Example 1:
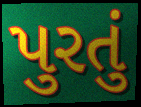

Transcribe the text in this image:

પુરતું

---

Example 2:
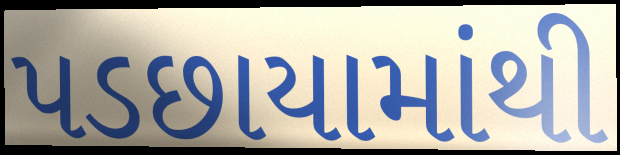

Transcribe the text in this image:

પડછાયામાંથી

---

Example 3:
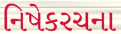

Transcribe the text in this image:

નિષેકરચના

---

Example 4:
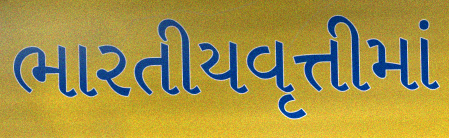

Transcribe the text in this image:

ભારતીયવૃત્તીમાં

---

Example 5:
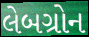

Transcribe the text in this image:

લેબગ્રોન